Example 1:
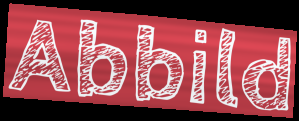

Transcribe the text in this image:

Abbild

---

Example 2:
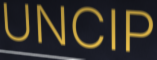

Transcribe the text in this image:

UNCIP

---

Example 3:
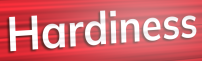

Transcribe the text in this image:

Hardiness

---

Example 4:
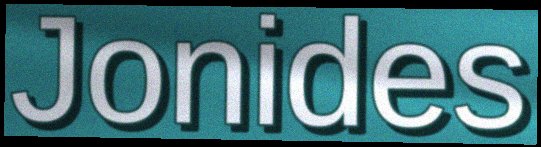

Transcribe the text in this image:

Jonides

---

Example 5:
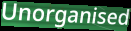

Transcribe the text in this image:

Unorganised